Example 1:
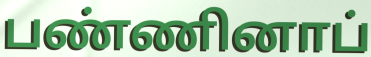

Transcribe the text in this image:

பண்ணினாப்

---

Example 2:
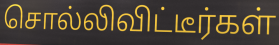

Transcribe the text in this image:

சொல்லிவிட்டீர்கள்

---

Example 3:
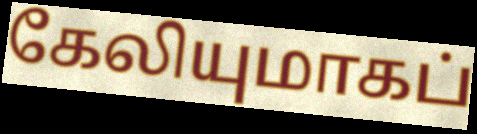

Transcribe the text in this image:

கேலியுமாகப்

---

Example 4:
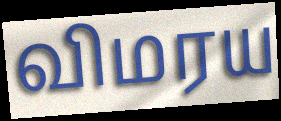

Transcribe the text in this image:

விமரய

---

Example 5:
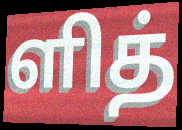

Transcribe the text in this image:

ளித்